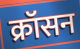
क्रॉसन